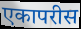
एकापरीस